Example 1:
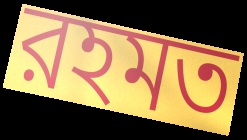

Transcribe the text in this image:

রহমত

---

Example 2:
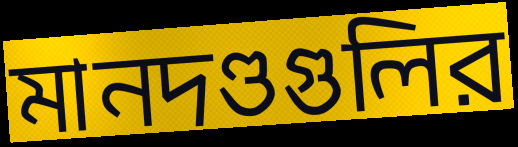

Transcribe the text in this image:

মানদণ্ডগুলির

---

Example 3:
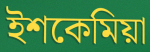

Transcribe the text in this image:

ইশকেমিয়া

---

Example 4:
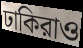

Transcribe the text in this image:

ঢাকিরাও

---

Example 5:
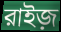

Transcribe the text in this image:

রাইজ়